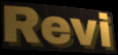
Revi